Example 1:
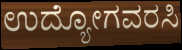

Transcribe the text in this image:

ಉದ್ಯೋಗವರಸಿ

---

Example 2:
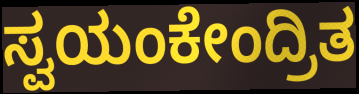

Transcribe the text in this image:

ಸ್ವಯಂಕೇಂದ್ರಿತ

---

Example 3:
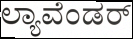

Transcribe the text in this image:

ಲ್ಯಾವೆಂಡರ್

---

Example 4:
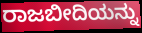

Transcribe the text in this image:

ರಾಜಬೀದಿಯನ್ನು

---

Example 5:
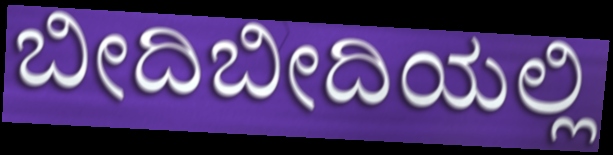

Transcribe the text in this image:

ಬೀದಿಬೀದಿಯಲ್ಲಿ